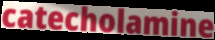
catecholamine